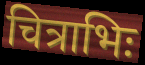
चित्राभिः